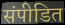
संपीडित